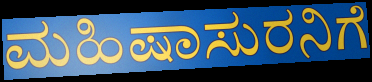
ಮಹಿಷಾಸುರನಿಗೆ